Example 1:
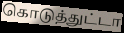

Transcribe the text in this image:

கொடுத்துட்டா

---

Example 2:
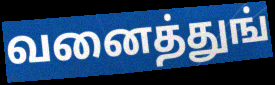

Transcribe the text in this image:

வனைத்துங்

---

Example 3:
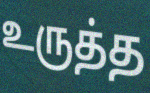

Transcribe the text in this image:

உருத்த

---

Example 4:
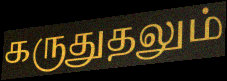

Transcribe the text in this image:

கருதுதலும்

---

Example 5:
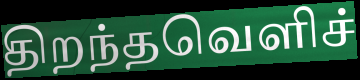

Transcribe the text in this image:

திறந்தவெளிச்